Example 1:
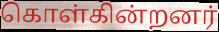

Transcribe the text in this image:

கொள்கின்றனர்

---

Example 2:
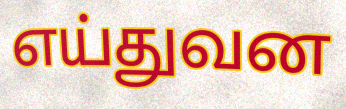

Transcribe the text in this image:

எய்துவன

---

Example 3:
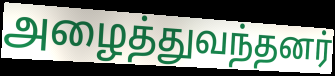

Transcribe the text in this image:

அழைத்துவந்தனர்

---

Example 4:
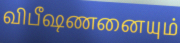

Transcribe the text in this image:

விபீஷணனையும்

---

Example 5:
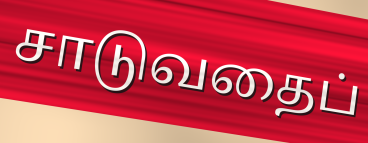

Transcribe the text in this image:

சாடுவதைப்